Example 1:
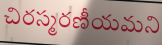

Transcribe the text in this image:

చిరస్మరణీయమని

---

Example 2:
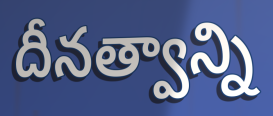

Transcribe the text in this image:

దీనత్వాన్ని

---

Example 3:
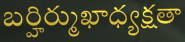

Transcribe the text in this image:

బర్హిర్ముఖాధ్యక్షతా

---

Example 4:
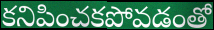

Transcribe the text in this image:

కనిపించకపోవడంతో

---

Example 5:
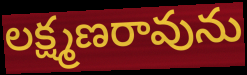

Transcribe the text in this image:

లక్ష్మణరావును